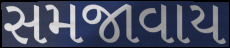
સમજાવાય